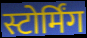
स्टोर्मिंग